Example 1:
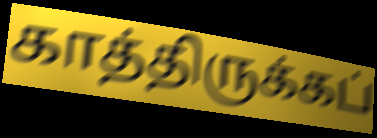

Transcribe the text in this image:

காத்திருக்கப்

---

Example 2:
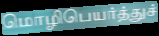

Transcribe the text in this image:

மொழிபெயர்த்துச்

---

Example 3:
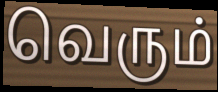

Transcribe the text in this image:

வெரும்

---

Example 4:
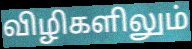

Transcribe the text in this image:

விழிகளிலும்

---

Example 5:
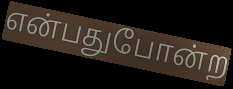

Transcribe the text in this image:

என்பதுபோன்ற